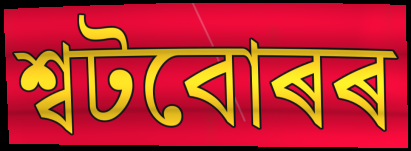
শ্বটবোৰৰ